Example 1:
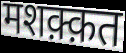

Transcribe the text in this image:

मशक़्क़त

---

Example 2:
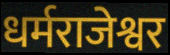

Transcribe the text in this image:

धर्मराजेश्वर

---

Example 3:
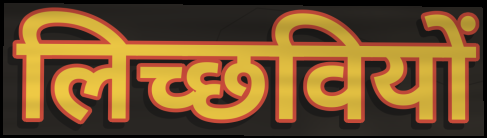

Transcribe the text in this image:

लिच्छवियों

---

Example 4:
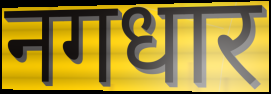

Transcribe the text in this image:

नगधार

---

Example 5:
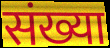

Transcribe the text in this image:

संख्‍या